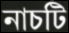
নাচটি